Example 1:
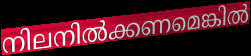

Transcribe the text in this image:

നിലനിൽക്കണമെങ്കിൽ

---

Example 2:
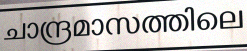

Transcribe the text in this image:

ചാന്ദ്രമാസത്തിലെ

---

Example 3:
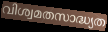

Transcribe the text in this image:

വിശ്വമതസാദ്ധ്യത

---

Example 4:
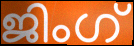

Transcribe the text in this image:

ജിംഗ്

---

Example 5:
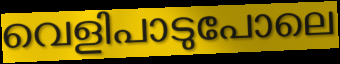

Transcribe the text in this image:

വെളിപാടുപോലെ